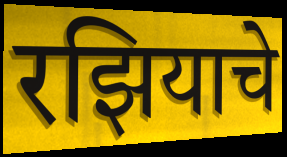
रझियाचे